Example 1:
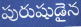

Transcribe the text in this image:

పురుషుడైన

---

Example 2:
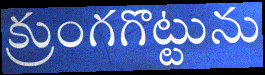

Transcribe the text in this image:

క్రుంగగొట్టును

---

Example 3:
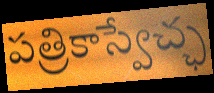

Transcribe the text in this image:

పత్రికాస్వేచ్ఛ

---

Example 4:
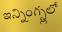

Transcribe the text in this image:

ఇన్నింగ్స్లలో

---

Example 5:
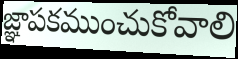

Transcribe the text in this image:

జ్ఞాపకముంచుకోవాలి